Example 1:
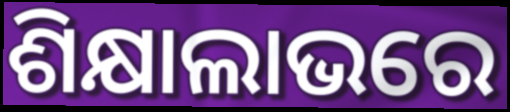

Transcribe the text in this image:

ଶିକ୍ଷାଲାଭରେ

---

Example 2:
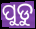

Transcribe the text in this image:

ପୁଡୁ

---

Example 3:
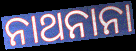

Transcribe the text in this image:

ନାଥନାନା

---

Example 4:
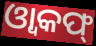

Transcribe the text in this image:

ଓ୍ଵାକଫ୍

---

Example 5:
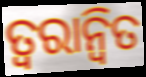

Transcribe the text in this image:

ତ୍ବରାନ୍ବିତ